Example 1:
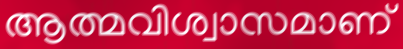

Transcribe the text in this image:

ആത്മവിശ്വാസമാണ്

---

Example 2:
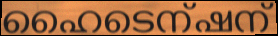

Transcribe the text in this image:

ഹൈടെന്ഷന്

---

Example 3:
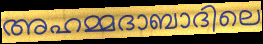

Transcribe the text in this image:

അഹമ്മദാബാദിലെ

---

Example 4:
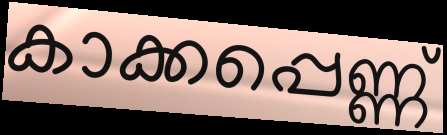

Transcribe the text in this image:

കാക്കപ്പെണ്ണ്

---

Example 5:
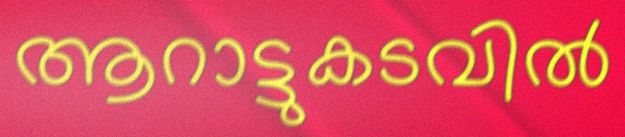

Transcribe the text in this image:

ആറാട്ടുകടവിൽ